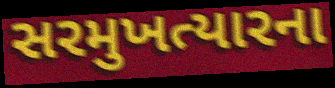
સરમુખત્યારના